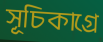
সূচিকাগ্রে